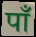
पाँ